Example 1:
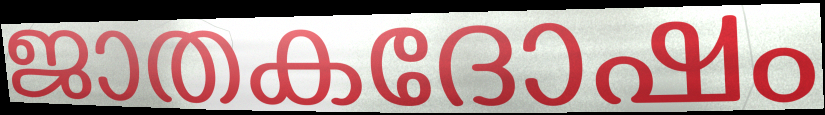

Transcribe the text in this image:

ജാതകദോഷം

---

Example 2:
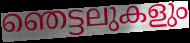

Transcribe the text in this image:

ഞെട്ടലുകളും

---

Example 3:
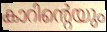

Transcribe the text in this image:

കാറിന്റെയും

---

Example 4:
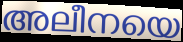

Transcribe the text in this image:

അലീനയെ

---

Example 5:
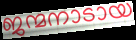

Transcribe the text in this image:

ജന്മനാടായ